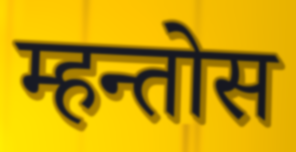
म्हन्तोस